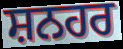
ਸ਼ਨਹਰ